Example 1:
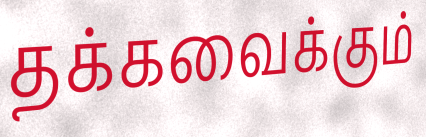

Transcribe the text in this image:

தக்கவைக்கும்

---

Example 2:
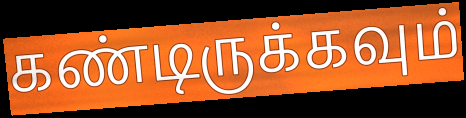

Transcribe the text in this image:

கண்டிருக்கவும்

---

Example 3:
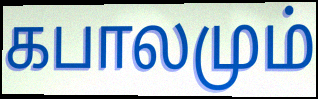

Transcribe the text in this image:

கபாலமும்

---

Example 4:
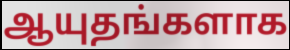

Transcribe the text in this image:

ஆயுதங்களாக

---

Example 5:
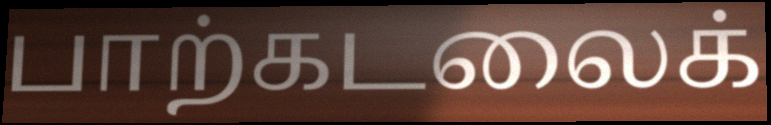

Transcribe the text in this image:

பாற்கடலைக்